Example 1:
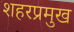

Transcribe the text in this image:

शहरप्रमुख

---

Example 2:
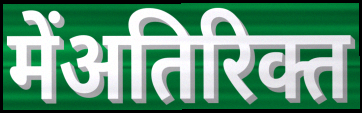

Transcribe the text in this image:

मेंअतिरिक्त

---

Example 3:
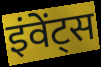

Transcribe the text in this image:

इंवेंट्स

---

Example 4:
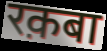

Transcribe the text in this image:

रक़बा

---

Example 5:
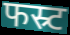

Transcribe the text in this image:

फस्र्ट